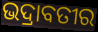
ଭଦ୍ରାବତୀର